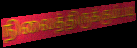
நிலைத்திருக்கும்படி